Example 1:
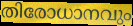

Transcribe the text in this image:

തിരോധാനവും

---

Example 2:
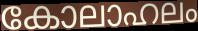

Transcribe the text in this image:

കോലാഹലം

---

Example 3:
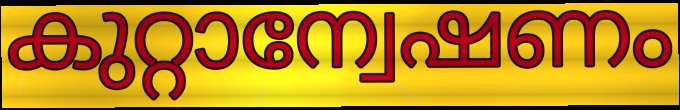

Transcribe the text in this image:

കുറ്റാന്വേഷണം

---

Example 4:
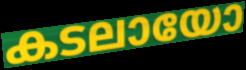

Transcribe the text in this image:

കടലായോ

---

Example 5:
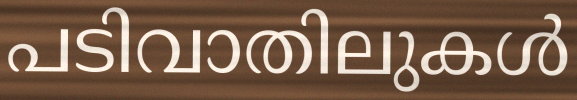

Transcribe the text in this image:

പടിവാതിലുകൾ